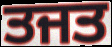
ਤਜਤ